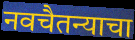
नवचैतन्याचा